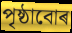
পৃষ্ঠাবোৰ